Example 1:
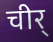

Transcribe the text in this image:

चीर्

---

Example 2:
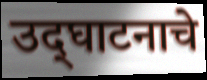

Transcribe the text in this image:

उद्‌घाटनाचे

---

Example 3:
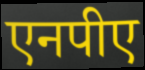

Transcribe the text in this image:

एनपीए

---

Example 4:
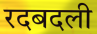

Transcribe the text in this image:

रदबदली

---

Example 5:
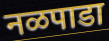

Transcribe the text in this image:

नळपाडा